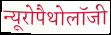
न्यूरोपैथोलॉजी